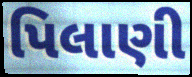
પિલાણી